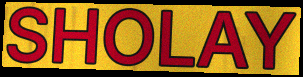
SHOLAY